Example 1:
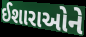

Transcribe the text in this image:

ઈશારાઓને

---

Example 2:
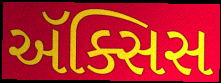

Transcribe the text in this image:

ઍક્સિસ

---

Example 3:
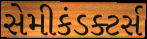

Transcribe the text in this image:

સેમીકંડક્ટર્સ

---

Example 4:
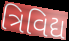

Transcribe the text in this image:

ત્રિવિદ્ય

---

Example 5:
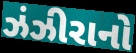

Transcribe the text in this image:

ઝંઝીરાનો